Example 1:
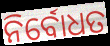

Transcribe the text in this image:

ନିର୍ବୋଧତ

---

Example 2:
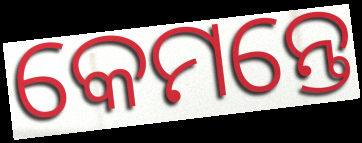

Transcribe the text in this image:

କେମନ୍ତେ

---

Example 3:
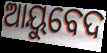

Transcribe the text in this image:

ଆୟୁବେଦ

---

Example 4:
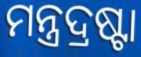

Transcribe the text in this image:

ମନ୍ତ୍ରଦ୍ରଷ୍ଟା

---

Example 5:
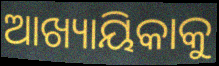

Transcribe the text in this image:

ଆଖ୍ୟାୟିକାକୁ